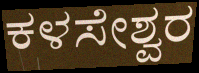
ಕಳಸೇಶ್ವರ